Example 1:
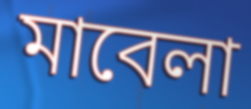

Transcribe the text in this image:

মাবেলা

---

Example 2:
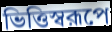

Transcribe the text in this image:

ভিত্তিস্বরূপে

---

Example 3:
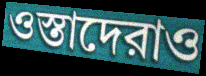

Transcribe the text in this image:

ওস্তাদেরাও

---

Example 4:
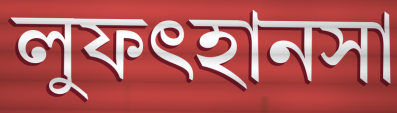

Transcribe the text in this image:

লুফৎহানসা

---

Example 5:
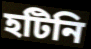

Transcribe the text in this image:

হটিনি